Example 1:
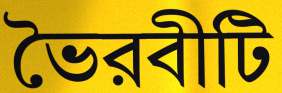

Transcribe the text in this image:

ভৈরবীটি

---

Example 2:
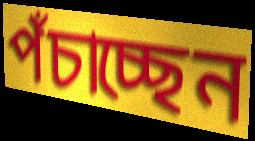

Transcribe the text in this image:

পঁচাচ্ছেন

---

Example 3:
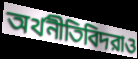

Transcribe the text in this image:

অর্থনীতিবিদরাও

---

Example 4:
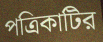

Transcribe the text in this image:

পত্রিকাটির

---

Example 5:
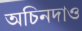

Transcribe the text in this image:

অচিনদাও